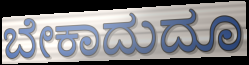
ಬೇಕಾದುದೂ